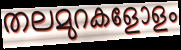
തലമുറകളോളം